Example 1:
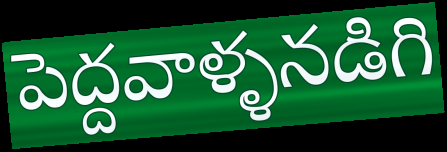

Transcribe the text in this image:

పెద్దవాళ్ళనడిగి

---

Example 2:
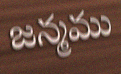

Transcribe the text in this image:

జన్మము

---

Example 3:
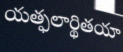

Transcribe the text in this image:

యత్ఫలార్థితయా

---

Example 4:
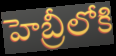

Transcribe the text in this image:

హెబ్రీలోకి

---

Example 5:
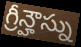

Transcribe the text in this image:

గ్రీన్హౌస్ను